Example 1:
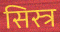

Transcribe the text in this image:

सिस्त्र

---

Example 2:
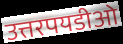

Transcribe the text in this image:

उत्तरपयडीओ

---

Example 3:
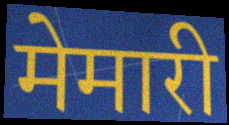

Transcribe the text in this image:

मेमारी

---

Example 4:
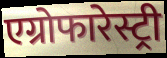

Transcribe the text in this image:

एग्रोफारेस्ट्री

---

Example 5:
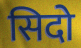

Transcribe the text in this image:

सिदो